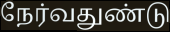
நேர்வதுண்டு